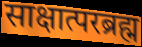
साक्षात्परब्रह्म